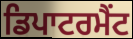
ਡਿਪਾਟਰਮੈਂਟ